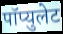
पॉप्युलेट